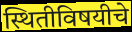
स्थितीविषयीचे